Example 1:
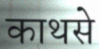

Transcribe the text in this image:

काथसे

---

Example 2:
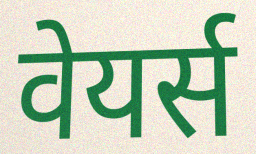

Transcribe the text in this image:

वेयर्स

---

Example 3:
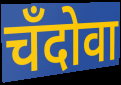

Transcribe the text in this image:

चँदोवा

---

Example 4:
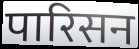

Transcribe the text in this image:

पारिसन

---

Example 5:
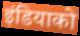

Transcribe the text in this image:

इंडियाको